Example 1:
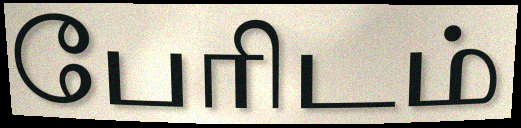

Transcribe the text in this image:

பேரிடம்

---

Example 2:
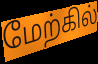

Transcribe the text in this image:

மேற்கில்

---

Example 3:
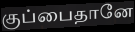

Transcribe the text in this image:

குப்பைதானே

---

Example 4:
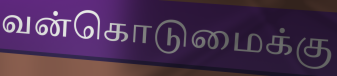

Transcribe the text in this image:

வன்கொடுமைக்கு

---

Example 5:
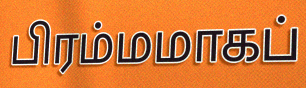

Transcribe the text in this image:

பிரம்மமாகப்